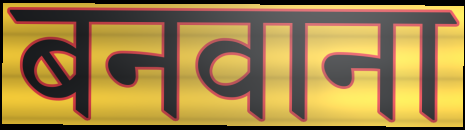
बनवाना